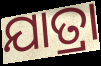
ଯାତ୍ରା